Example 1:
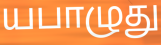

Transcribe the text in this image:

யபாழுது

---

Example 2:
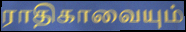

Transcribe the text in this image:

ராதிகாவையும்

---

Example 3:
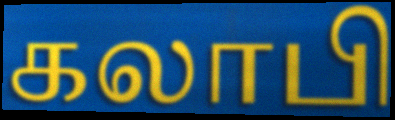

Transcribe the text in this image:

கலாபி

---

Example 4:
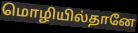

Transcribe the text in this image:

மொழியில்தானே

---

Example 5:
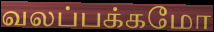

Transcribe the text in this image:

வலப்பக்கமோ